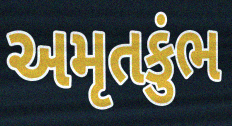
અમૃતકુંભ